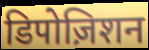
डिपोज़िशन